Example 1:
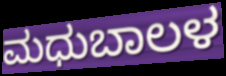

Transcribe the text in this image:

ಮಧುಬಾಲಳ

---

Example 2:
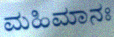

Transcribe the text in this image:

ಮಹಿಮಾನಃ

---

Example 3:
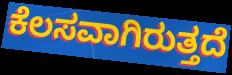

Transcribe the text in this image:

ಕೆಲಸವಾಗಿರುತ್ತದೆ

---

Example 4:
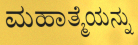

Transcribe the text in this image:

ಮಹಾತ್ಮೆಯನ್ನು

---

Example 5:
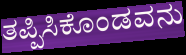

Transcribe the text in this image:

ತಪ್ಪಿಸಿಕೊಂಡವನು